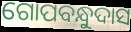
ଗୋପବନ୍ଧୁଦାସ